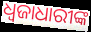
ଧ୍ୱଜାଧାରୀଙ୍କ